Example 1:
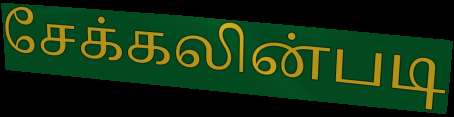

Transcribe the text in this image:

சேக்கலின்படி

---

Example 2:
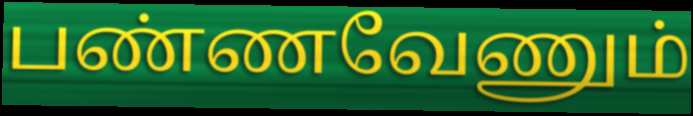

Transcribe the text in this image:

பண்ணவேணும்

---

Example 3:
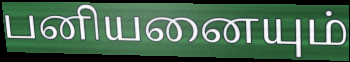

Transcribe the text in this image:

பனியனையும்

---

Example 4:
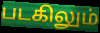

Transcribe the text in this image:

படகிலும்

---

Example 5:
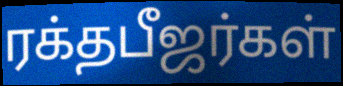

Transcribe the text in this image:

ரக்தபீஜர்கள்